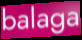
balaga